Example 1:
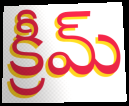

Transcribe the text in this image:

క్రీమ్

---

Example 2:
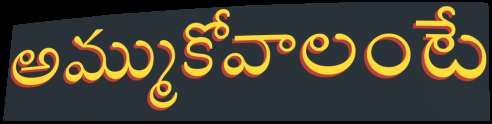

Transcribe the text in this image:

అమ్ముకోవాలంటే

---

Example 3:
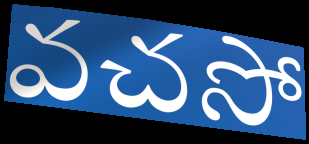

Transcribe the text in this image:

వచసో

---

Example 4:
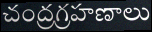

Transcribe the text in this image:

చంద్రగ్రహణాలు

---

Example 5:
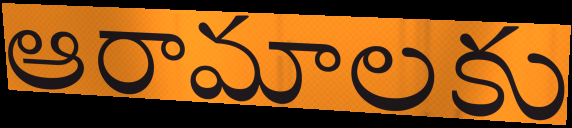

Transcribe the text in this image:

ఆరామాలకు